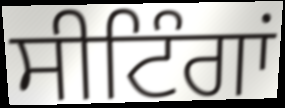
ਸੀਟਿੰਗਾਂ